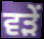
ਵੜੇਂ